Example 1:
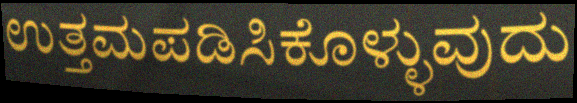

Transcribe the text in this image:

ಉತ್ತಮಪಡಿಸಿಕೊಳ್ಳುವುದು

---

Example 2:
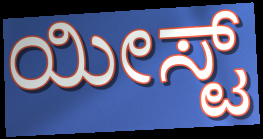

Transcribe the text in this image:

ಯೀಸ್ಟ್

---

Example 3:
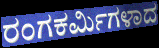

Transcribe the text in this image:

ರಂಗಕರ್ಮಿಗಳಾದ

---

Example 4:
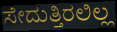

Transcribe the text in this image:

ಸೇದುತ್ತಿರಲಿಲ್ಲ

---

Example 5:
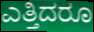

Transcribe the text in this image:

ಎತ್ತಿದರೂ